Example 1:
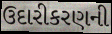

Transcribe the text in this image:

ઉદારીકરણની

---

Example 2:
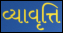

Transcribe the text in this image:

વ્યાવૃત્તિ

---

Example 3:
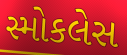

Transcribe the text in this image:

સ્મોકલેસ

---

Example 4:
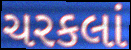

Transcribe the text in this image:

ચરકલાં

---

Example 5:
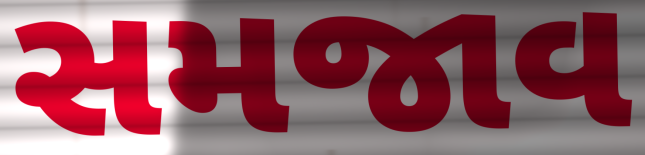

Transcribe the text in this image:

સમજાવ